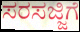
ಸರಸಜ್ಜಿಗೆ